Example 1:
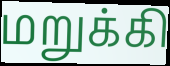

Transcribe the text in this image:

மறுக்கி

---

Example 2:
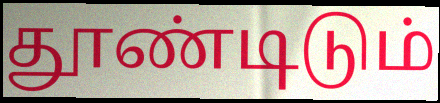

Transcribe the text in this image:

தூண்டிடும்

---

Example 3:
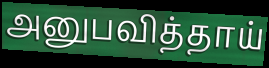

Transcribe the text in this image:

அனுபவித்தாய்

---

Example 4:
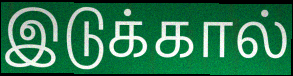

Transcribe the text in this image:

இடுக்கால்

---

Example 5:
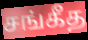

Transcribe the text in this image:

சங்கீத